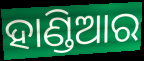
ହାଣ୍ଡିଆର